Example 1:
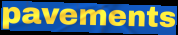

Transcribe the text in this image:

pavements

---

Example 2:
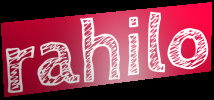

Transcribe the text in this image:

rahilo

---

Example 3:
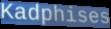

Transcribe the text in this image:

Kadphises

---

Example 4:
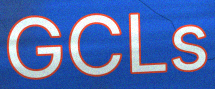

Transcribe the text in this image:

GCLs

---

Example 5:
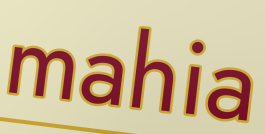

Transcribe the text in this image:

mahia